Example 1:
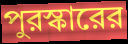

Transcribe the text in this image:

পুরস্কারের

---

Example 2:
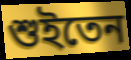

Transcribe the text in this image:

শুইতেন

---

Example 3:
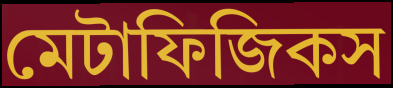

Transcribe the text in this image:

মেটাফিজিকস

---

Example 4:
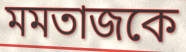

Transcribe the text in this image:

মমতাজকে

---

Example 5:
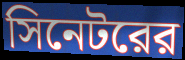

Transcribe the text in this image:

সিনেটরের